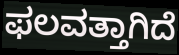
ಫಲವತ್ತಾಗಿದೆ